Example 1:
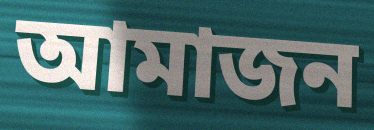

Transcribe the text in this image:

আমাজন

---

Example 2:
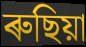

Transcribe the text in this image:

ৰুছিয়া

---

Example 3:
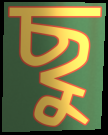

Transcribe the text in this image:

ছু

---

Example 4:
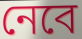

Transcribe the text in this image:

নেবে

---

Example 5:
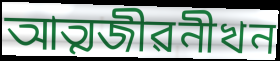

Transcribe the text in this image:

আত্মজীৱনীখন